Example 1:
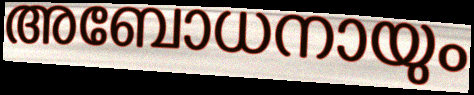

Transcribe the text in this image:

അബോധനായും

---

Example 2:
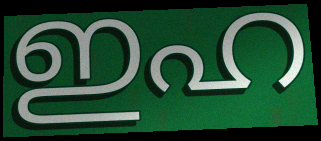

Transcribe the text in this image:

ഇഹ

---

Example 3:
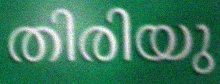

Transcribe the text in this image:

തിരിയു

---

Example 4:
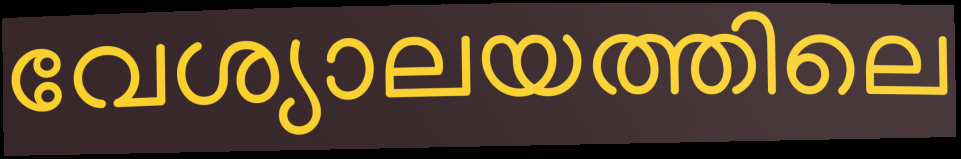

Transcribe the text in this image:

വേശ്യാലയത്തിലെ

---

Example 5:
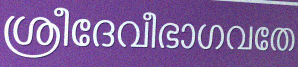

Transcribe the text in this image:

ശ്രീദേവീഭാഗവതേ